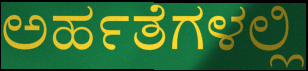
ಅರ್ಹತೆಗಳಲ್ಲಿ